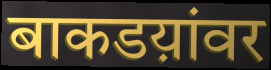
बाकडय़ांवर